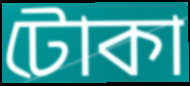
টোকা